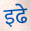
इढे